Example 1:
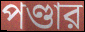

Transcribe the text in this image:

পণ্ডার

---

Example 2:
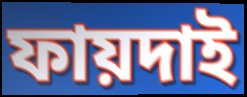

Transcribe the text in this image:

ফায়দাই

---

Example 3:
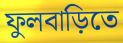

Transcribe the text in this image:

ফুলবাড়িতে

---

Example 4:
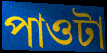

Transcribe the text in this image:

পাওটা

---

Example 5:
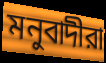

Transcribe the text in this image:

মনুবাদীরা